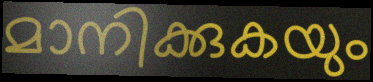
മാനിക്കുകയും